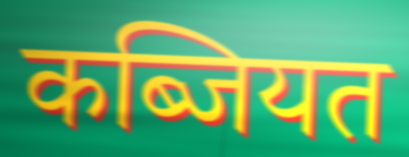
कब्जियत